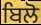
ਬਿਲੋ